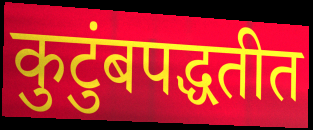
कुटुंबपद्धतीत